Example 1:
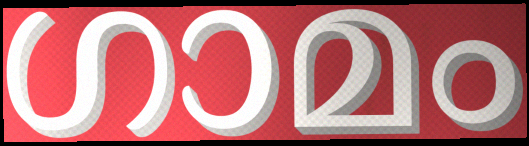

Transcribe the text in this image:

ഗാമം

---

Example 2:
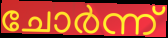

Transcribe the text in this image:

ചോർന്ന്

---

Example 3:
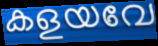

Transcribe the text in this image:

കളയവേ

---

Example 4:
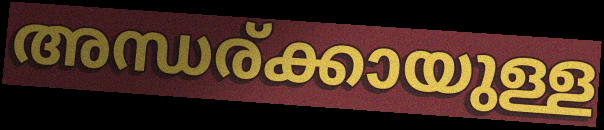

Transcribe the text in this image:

അന്ധര്ക്കായുള്ള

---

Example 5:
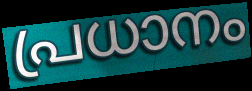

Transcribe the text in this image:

പ്രധാനം